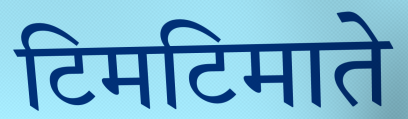
टिमटिमाते